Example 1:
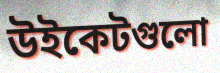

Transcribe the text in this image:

উইকেটগুলো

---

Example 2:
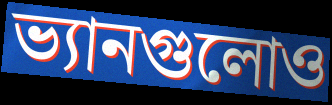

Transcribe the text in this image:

ভ্যানগুলোও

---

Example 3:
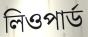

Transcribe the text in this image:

লিওপার্ড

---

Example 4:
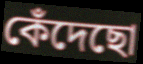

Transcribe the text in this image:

কেঁদেছো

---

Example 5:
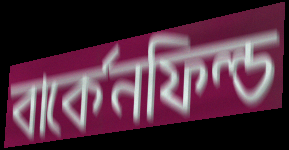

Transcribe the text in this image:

বার্কেনফিল্ড